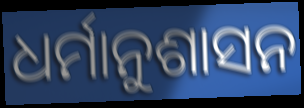
ଧର୍ମାନୁଶାସନ